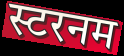
स्टरनम